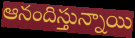
ఆనందిస్తున్నాయి